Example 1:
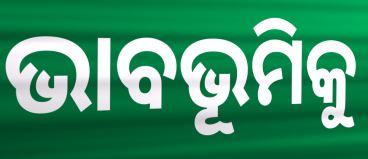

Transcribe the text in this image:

ଭାବଭୂମିକୁ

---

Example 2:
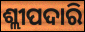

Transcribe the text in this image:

ଶ୍ଲୀପଦାରି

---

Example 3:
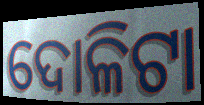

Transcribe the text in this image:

ଦୋଳିଟା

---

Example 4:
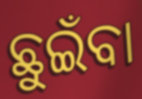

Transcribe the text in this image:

ଛୁଇଁବା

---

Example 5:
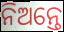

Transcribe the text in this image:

ନିଅନ୍ତେ